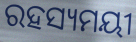
ରହସ୍ୟମୟୀ